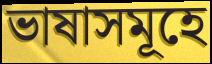
ভাষাসমূহে